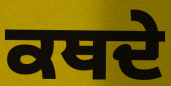
ਕਥਦੇ